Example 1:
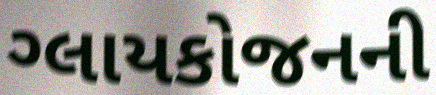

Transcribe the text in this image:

ગ્લાયકોજનની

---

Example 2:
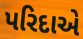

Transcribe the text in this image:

પરિદાએ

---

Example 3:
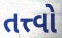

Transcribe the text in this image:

તત્ત્વો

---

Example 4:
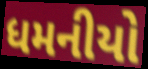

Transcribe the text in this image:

ધમનીયો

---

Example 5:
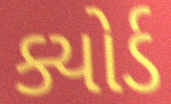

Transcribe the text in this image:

ક્યોર્ડ